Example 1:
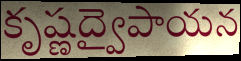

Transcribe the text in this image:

కృష్ణద్వైపాయన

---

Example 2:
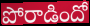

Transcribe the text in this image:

పోరాడిందో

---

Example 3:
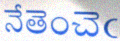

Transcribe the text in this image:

నేతెంచెఁ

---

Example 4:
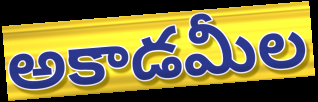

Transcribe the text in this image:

అకాడమీల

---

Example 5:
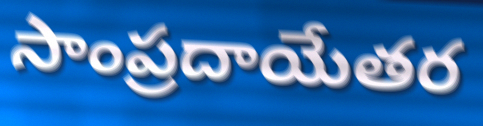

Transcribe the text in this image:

సాంప్రదాయేతర